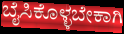
ಬೈಸಿಕೊಳ್ಳಬೇಕಾಗಿ